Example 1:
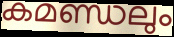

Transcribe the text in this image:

കമണ്ഡലും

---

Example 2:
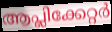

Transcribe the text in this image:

ആപ്ലിക്കേറ്റർ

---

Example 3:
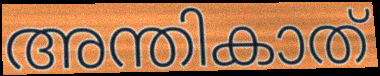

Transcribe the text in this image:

അന്തികാത്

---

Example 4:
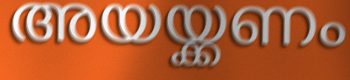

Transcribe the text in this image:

അയയ്ക്കണം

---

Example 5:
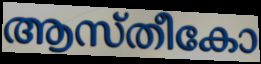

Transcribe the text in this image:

ആസ്തീകോ